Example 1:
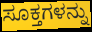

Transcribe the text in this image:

ಸೂಕ್ತಗಳನ್ನು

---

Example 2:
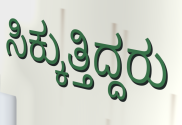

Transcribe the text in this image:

ಸಿಕ್ಕುತ್ತಿದ್ದರು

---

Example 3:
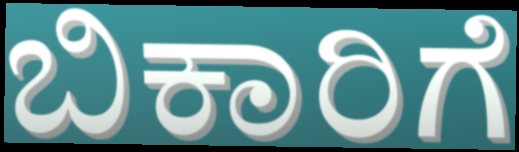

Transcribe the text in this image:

ಬಿಕಾರಿಗೆ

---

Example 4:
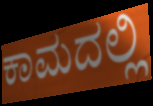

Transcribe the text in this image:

ಕಾಮದಲ್ಲಿ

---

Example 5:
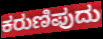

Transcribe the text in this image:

ಕರುಣಿಪುದು